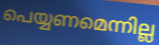
പെയ്യണമെന്നില്ല